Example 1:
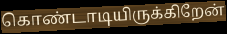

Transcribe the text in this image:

கொண்டாடியிருக்கிறேன்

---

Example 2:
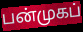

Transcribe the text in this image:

பன்முகப்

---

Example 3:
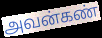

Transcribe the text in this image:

அவன்கண்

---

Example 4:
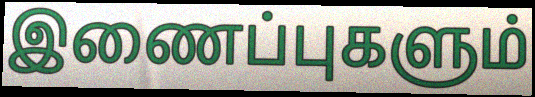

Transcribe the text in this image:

இணைப்புகளும்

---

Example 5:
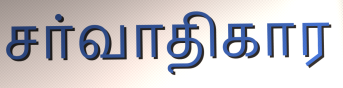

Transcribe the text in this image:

சர்வாதிகார